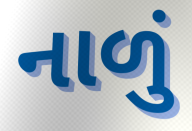
નાળું